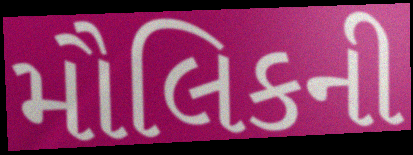
મૌલિકની